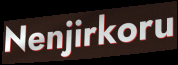
Nenjirkoru